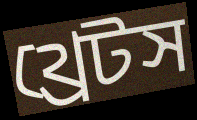
থ্রেটস